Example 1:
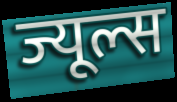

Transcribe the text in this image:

ज्यूल्स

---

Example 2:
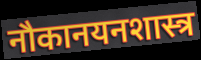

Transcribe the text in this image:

नौकानयनशास्त्र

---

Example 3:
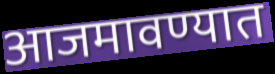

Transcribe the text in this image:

आजमावण्यात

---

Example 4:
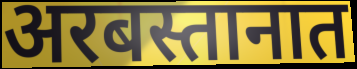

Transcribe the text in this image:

अरबस्तानात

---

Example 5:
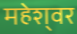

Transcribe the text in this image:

महेश्वर